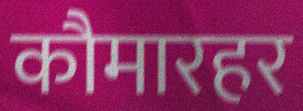
कौमारहर